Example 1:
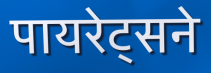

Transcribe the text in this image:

पायरेट्सने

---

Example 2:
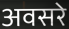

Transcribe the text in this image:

अवसरे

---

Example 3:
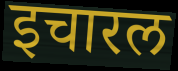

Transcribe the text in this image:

इचारल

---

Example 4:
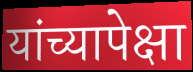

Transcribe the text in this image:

यांच्यापेक्षा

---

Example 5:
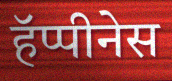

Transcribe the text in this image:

हॅप्पीनेस